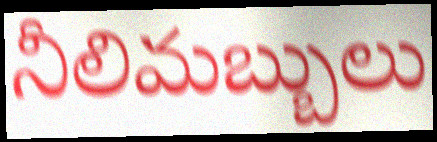
నీలిమబ్బులు